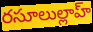
రసూలుల్లాహ్